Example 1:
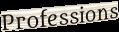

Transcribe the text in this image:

Professions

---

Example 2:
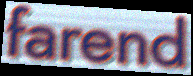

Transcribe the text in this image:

farend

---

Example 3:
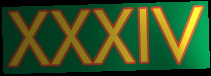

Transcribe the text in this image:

XXXIV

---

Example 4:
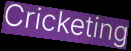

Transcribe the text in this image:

Cricketing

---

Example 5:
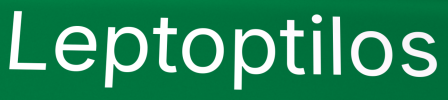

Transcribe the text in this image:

Leptoptilos